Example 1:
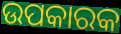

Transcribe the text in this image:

ଉପକାରକ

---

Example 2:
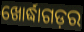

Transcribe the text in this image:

ଖୋର୍ଦ୍ଧାଗଡ଼ର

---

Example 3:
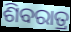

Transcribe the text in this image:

ଶିବରାତ୍ର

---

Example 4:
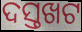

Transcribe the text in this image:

ଦସ୍ତଖଟ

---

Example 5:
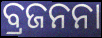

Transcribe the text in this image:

ବ୍ରଜନନା